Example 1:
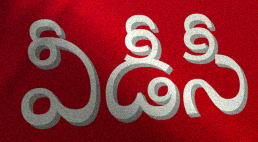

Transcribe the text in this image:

వీడీసీ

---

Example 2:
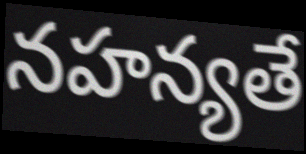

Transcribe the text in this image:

నహన్యతే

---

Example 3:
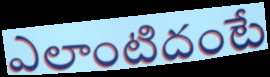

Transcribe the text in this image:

ఎలాంటిదంటే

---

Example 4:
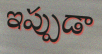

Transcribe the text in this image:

ఇప్పుడా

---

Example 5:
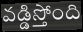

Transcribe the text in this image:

వడ్డిస్తోంది